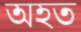
অহত